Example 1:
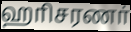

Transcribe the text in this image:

ஹரிசரணர்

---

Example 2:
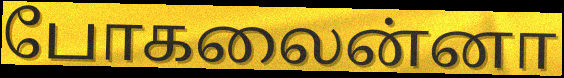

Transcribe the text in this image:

போகலைன்னா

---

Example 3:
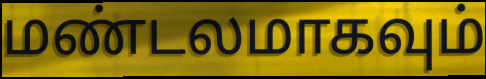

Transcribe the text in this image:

மண்டலமாகவும்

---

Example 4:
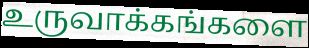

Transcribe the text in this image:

உருவாக்கங்களை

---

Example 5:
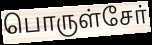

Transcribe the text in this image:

பொருள்சேர்